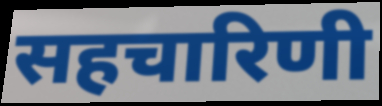
सहचारिणी